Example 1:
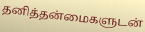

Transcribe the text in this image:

தனித்தன்மைகளுடன்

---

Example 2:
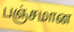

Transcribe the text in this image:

பஞ்சமான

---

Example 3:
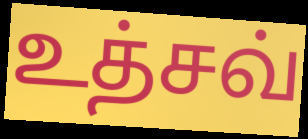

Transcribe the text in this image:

உத்சவ்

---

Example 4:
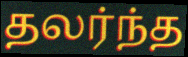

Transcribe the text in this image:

தலர்ந்த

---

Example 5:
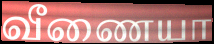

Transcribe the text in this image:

வீணையா